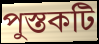
পুস্তকটি